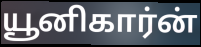
யூனிகார்ன்